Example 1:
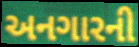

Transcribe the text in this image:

અનગારની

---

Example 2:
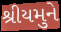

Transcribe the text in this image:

શ્રીયમુને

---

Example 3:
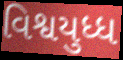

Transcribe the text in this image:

વિશ્વયુધ્ધ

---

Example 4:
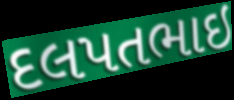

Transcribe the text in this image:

દલપતભાઇ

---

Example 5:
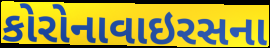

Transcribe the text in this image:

કોરોનાવાઇરસના